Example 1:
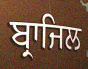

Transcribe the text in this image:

ਬ੍ਰਾਜਿਲ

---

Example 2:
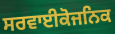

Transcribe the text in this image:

ਸਰਵਾਈਕੋਜਨਿਕ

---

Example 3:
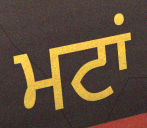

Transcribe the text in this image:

ਮਟਾਂ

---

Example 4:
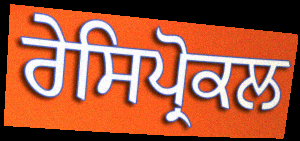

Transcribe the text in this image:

ਰੇਸਿਪ੍ਰੋਕਲ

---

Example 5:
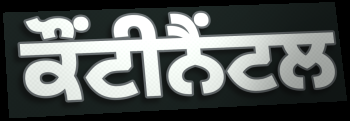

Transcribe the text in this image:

ਕੌਂਟੀਨੈਂਟਲ